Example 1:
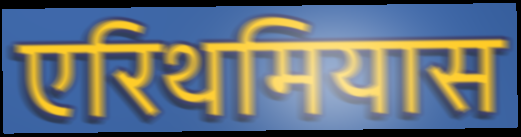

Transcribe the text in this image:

एरिथमियास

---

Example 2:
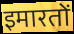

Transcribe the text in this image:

इमारतों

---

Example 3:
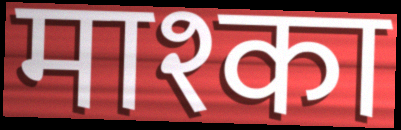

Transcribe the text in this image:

माश्का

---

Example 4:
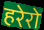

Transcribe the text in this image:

हरेरो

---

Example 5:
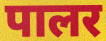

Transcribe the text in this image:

पालर